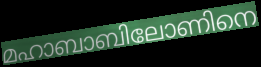
മഹാബാബിലോണിനെ